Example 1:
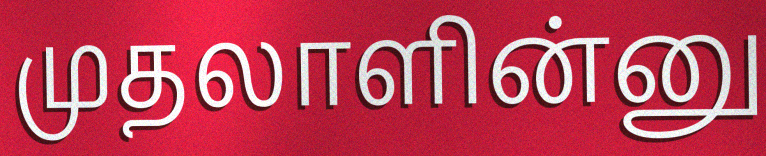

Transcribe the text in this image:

முதலாளின்னு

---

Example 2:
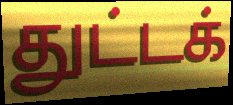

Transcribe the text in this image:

துட்டக்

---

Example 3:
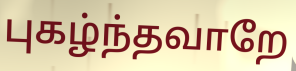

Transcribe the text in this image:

புகழ்ந்தவாறே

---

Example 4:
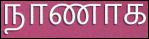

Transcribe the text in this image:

நாணாக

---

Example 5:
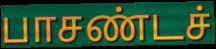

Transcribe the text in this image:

பாசண்டச்